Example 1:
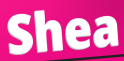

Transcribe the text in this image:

Shea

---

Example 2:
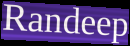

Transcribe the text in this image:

Randeep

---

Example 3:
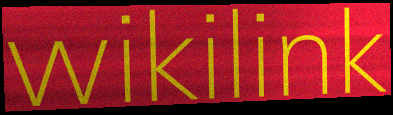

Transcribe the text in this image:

wikilink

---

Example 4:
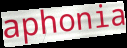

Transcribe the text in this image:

aphonia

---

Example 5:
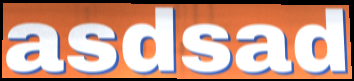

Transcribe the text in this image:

asdsad